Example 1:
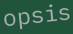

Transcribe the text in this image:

opsis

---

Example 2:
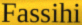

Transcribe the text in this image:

Fassihi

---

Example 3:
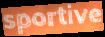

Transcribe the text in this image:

sportive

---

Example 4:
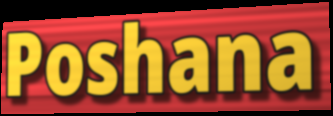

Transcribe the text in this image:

Poshana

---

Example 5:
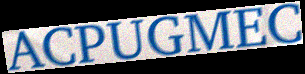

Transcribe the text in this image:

ACPUGMEC